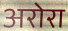
अरोरा